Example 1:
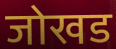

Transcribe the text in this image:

जोखड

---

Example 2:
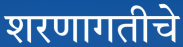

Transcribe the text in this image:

शरणागतीचे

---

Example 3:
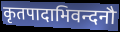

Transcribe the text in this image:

कृतपादाभिवन्दनौ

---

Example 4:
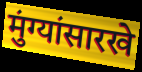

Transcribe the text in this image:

मुंग्यांसारखे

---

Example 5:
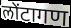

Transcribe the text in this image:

लोंटागण